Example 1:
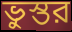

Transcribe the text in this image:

ভুস্তর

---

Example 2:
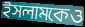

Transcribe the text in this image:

ইসলামকেও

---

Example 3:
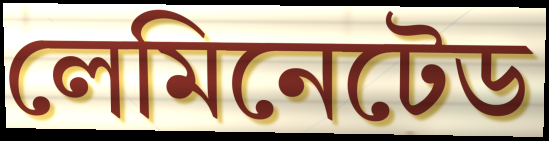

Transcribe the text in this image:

লেমিনেটেড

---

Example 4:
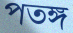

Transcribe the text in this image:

পতঙ্গ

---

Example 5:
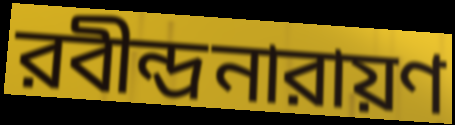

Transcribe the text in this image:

রবীন্দ্রনারায়ণ